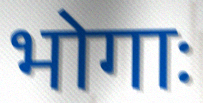
भोगाः